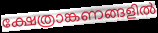
ക്ഷേത്രാങ്കണങ്ങളിൽ